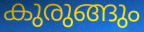
കുരുങ്ങും